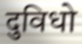
दुविधो